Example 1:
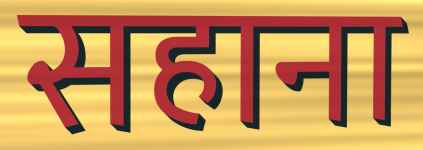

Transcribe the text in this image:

सहाना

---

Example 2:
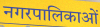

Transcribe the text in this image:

नगरपालिकाओं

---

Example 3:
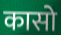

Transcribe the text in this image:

कासो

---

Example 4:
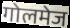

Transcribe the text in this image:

गोलमेज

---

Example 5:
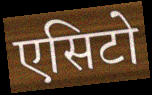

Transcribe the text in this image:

एसिटो